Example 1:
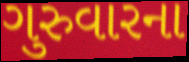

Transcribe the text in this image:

ગુરુવારના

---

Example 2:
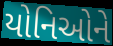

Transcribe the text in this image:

યોનિઓને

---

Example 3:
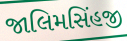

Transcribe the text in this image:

જાલિમસિંહજી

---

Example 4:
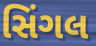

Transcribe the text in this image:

સિંગલ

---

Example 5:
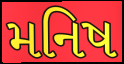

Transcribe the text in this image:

મનિષ